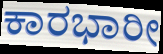
ಕಾರಭಾರೀ